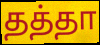
தத்தா